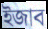
ইজাব